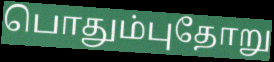
பொதும்புதோறு